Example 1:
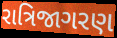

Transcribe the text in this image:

રાત્રિજાગરણ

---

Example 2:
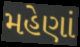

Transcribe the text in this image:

મહેણાં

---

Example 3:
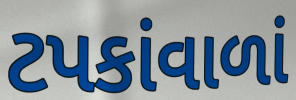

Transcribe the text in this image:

ટપકાંવાળાં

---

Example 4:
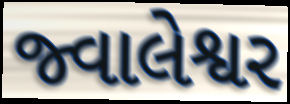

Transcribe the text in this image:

જ્વાલેશ્વર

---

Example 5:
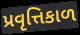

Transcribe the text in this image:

પ્રવૃત્તિકાળ